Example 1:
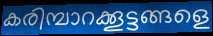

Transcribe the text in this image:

കരിമ്പാറക്കൂട്ടങ്ങളെ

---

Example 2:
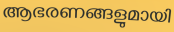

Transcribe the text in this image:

ആഭരണങ്ങളുമായി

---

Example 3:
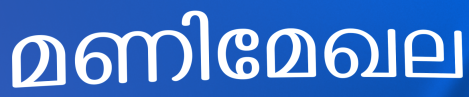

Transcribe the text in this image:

മണിമേഖല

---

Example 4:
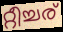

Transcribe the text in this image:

റ്റീച്ചര്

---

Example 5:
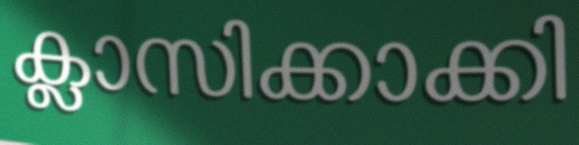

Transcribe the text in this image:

ക്ലാസിക്കാക്കി